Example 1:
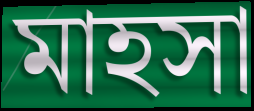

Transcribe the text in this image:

মাহসা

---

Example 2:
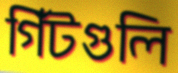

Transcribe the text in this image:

গিঁটগুলি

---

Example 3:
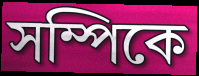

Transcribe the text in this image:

সম্পিকে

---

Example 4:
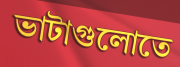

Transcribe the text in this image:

ভাটাগুলোতে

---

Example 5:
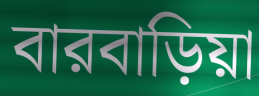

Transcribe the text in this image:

বারবাড়িয়া